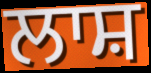
ਲਾਸ਼